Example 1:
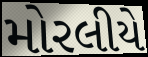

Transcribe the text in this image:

મોરલીયે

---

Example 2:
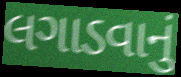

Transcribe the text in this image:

લગાડવાનું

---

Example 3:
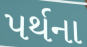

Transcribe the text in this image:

પર્થના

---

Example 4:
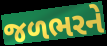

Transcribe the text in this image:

જળભરને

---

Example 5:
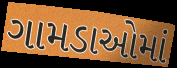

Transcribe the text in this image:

ગામડાઓમાં